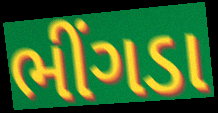
ભીંગડા